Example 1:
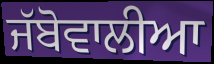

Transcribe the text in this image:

ਜੱਬੋਵਾਲੀਆ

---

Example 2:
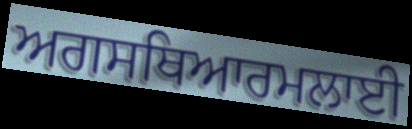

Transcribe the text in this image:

ਅਗਸਥਿਆਰਮਲਾਈ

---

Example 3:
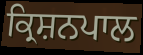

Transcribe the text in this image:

ਕ੍ਰਿਸ਼ਨਪਾਲ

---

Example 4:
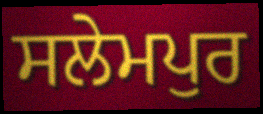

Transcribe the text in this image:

ਸਲੇਮਪੁਰ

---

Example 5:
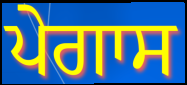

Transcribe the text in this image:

ਪੇਗਾਸ